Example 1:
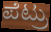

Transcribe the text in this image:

ಪೆಟ್ರು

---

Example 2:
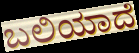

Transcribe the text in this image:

ಬಲಿಯಾದೆ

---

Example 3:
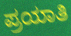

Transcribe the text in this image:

ಪ್ರಯಾತಿ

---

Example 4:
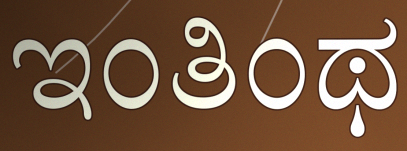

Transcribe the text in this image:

ಇಂತಿಂಥ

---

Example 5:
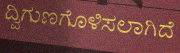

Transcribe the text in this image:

ದ್ವಿಗುಣಗೊಳಿಸಲಾಗಿದೆ